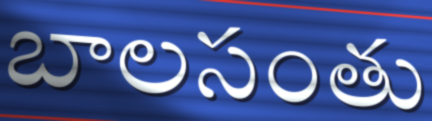
బాలసంతు